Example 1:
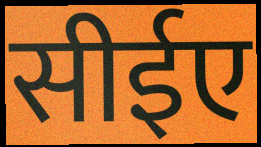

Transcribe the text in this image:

सीईए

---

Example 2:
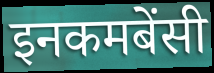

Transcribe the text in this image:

इनकमबेंसी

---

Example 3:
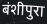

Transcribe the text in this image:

बंशीपुरा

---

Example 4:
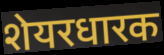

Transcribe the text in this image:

शेयरधारक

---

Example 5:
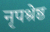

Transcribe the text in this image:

नृपश्रेष्ठ